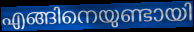
എങ്ങിനെയുണ്ടായി